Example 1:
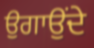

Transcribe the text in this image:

ਉਗਾਉਂਦੇ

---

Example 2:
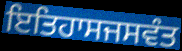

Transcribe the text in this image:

ਇਤਿਹਾਸਜਸਵੰਤ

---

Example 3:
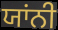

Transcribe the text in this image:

ਯਾਂਨੀ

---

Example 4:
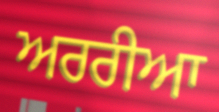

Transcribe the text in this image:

ਅਰਰੀਆ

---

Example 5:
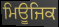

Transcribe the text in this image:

ਮਿਊਜਿਕ